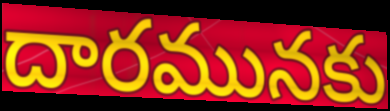
దారమునకు